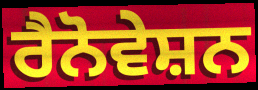
ਰੈਨੋਵੇਸ਼ਨ